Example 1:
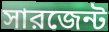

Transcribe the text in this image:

সারজেন্ট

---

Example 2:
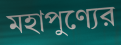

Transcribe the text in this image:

মহাপুণ্যের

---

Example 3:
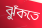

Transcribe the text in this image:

ঝুঁকতে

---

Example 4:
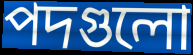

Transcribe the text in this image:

পদগুলো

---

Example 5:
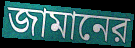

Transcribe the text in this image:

জামানের